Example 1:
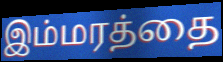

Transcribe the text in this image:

இம்மரத்தை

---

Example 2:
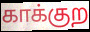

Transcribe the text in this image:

காக்குற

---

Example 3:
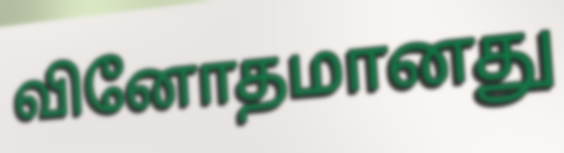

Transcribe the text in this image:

வினோதமானது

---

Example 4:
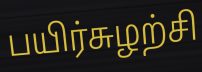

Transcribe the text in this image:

பயிர்சுழற்சி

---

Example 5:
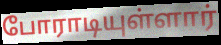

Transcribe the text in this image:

போராடியுள்ளார்